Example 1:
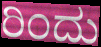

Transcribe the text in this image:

ರಿಂದು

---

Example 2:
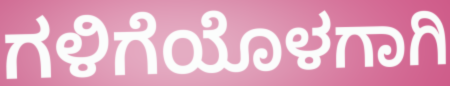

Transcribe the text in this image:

ಗಳಿಗೆಯೊಳಗಾಗಿ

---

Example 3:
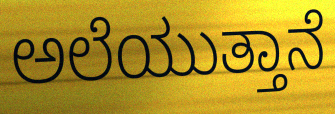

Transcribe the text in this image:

ಅಲೆಯುತ್ತಾನೆ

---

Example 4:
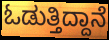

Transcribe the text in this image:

ಓಡುತ್ತಿದ್ದಾನೆ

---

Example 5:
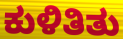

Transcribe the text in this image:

ಕುಳಿತಿತು